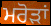
ਮਰੋੜਾਂ